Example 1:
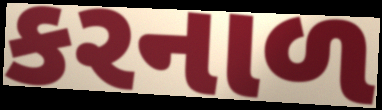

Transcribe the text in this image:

કરનાળ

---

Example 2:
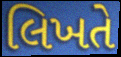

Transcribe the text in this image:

લિખતે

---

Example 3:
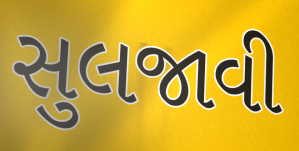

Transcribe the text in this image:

સુલજાવી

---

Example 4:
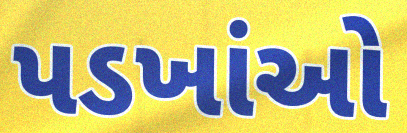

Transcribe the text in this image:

પડખાંઓ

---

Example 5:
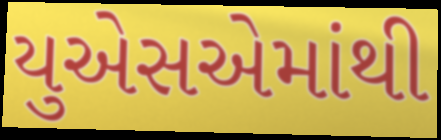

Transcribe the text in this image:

યુએસએમાંથી